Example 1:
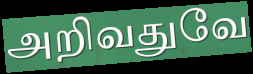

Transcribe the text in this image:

அறிவதுவே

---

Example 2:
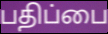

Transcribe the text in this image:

பதிப்பை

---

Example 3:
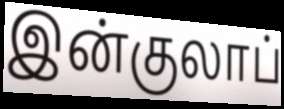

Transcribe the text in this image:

இன்குலாப்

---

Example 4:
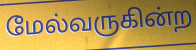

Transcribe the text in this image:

மேல்வருகின்ற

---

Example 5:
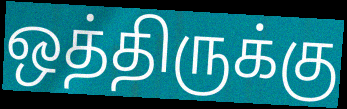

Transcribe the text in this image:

ஒத்திருக்கு